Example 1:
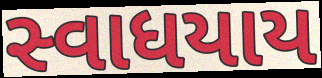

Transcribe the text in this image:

સ્વાધયાય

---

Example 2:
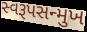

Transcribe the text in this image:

સ્વરૂપસન્મુખ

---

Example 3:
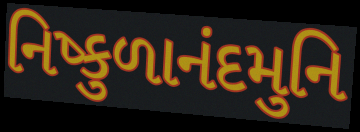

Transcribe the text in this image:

નિષ્કુળાનંદમુનિ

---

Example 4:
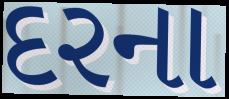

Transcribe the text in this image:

દરના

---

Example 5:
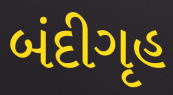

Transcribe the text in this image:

બંદીગૃહ